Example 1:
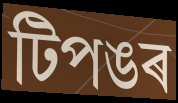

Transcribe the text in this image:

টিপঙৰ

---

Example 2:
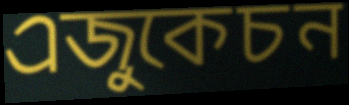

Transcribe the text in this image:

এজুকেচন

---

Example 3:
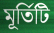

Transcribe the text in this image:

মূৰ্তিটি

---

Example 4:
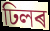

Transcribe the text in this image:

ঢিলৰ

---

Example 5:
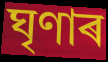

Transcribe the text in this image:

ঘৃণাৰ